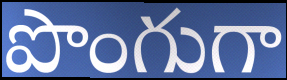
పొంగుగా